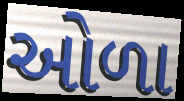
ઓળા